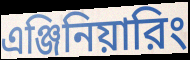
এঞ্জিনিয়ারিং